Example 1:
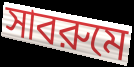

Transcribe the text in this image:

সাবরুমে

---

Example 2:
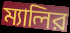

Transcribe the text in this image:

ম্যালির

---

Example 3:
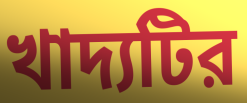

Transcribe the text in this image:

খাদ্যটির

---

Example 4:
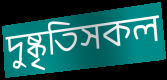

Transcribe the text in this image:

দুষ্কৃতিসকল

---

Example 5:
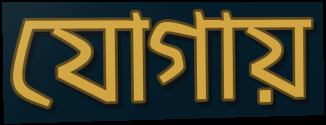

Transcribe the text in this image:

যোগায়